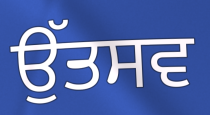
ਉੱਤਸਵ